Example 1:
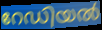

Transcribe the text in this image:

റേഡിയൽ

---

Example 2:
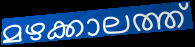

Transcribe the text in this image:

മഴക്കാലത്ത്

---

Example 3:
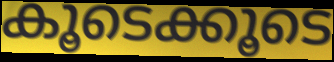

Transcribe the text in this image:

കൂടെക്കൂടെ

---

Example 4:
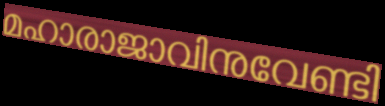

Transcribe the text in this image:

മഹാരാജാവിനുവേണ്ടി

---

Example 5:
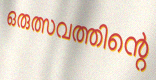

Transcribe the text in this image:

ഒരുത്സവത്തിന്റെ